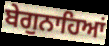
ਬੇਗੁਨਾਹਿਆਂ